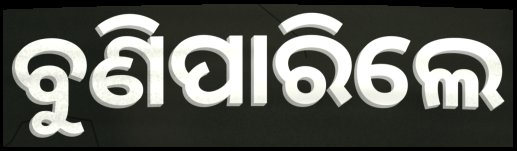
ବୁଣିପାରିଲେ